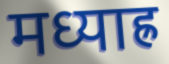
मध्याह्र